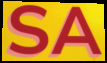
SA